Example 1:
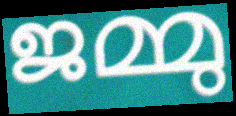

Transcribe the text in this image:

ജമ്മു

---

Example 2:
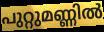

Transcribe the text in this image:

പുറ്റുമണ്ണിൽ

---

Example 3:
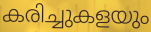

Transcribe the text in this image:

കരിച്ചുകളയും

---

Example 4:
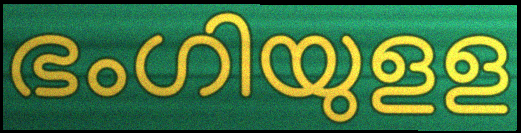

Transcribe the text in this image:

ഭംഗിയുളള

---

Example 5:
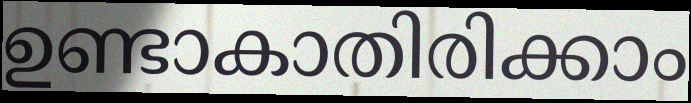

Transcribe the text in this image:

ഉണ്ടാകാതിരിക്കാം